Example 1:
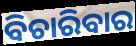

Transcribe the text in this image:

ବିଚାରିବାର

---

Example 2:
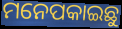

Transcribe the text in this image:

ମନେପକାଇଛୁ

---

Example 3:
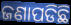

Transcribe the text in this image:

ଜଣାପଡିଛି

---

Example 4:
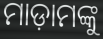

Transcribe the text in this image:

ମାଡ଼ାମଙ୍କୁ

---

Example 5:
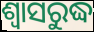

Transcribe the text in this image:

ଶ୍ୱାସରୁଦ୍ଧ